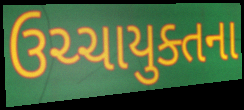
ઉચ્ચાયુક્તના